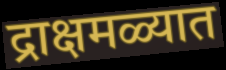
द्राक्षमळ्यात